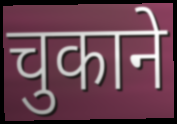
चुकाने